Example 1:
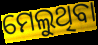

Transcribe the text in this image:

ମେଲୁଥିବା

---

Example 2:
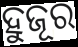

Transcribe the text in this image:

ହୁଜୂର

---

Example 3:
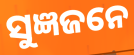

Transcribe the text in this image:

ସୁଜ୍ଞଜନେ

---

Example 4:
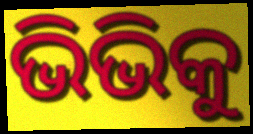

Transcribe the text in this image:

ଭିଭିକୁ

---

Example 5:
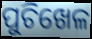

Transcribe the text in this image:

ପୁଚିଖେଳ